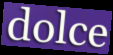
dolce